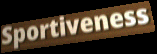
Sportiveness